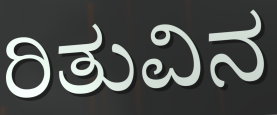
ರಿತುವಿನ